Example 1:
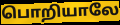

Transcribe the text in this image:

பொறியாலே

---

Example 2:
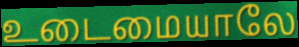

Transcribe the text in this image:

உடைமையாலே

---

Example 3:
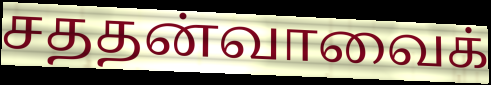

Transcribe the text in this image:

சததன்வாவைக்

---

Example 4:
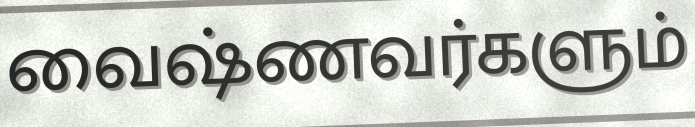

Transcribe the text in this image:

வைஷ்ணவர்களும்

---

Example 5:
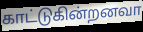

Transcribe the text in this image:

காட்டுகின்றனவா